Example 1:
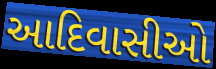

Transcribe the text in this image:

આદિવાસીઓ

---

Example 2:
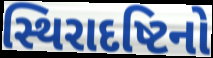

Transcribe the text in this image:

સ્થિરાદષ્ટિનો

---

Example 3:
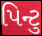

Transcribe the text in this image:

પિન્ટુ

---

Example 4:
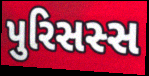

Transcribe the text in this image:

પુરિસસ્સ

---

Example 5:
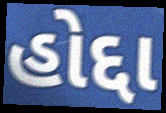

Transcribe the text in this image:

હોદ્દા